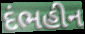
દંભહીન